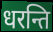
धरन्ति